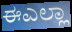
ಈಎಲ್ಲಾ